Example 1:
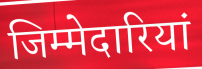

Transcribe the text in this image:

जिम्मेदारियां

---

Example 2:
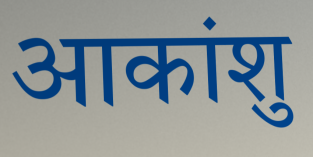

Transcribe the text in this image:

आकांशु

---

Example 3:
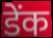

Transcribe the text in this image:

डेंक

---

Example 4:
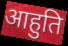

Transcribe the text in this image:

आहुति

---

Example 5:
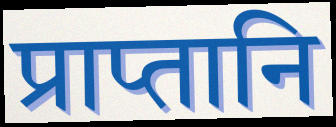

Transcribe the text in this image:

प्राप्तानि